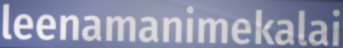
leenamanimekalai